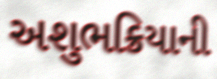
અશુભક્રિયાની